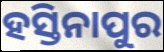
ହସ୍ତିନାପୁର